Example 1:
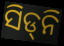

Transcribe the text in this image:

ସିଡ୍‍ନି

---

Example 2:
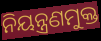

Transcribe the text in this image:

ନିୟନ୍ତ୍ରଣମୁକ୍ତ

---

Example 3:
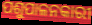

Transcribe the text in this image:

ପଶୁପାଳନକାରୀ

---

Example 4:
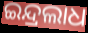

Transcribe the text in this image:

ଇନ୍ଦ୍ରଲାଧ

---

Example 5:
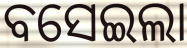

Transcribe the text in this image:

ବସେଇଲା